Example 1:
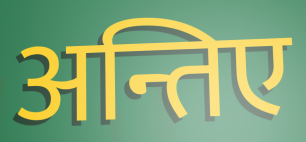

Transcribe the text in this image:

अन्तिए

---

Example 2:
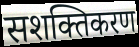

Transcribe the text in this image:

सशक्तिकरण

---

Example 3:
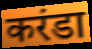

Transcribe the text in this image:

करंडा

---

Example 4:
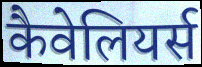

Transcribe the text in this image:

कैवेलियर्स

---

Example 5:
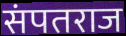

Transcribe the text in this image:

संपतराज